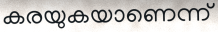
കരയുകയാണെന്ന്